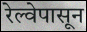
रेल्वेपासून